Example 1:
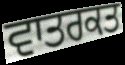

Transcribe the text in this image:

ਵਾਤਰਕਤ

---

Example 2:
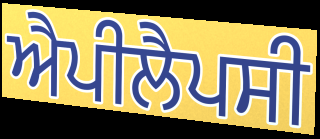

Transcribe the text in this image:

ਐਪੀਲੈਪਸੀ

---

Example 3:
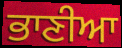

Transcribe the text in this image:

ਭਾਣੀਆ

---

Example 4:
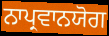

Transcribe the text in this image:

ਨਾਪ੍ਰਵਾਨਯੋਗ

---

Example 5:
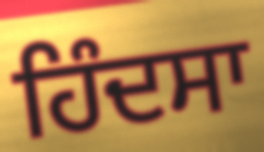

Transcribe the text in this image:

ਹਿੰਦਸਾ